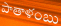
పాతాళంబు